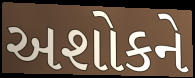
અશોકને